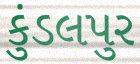
કુંડલપુર